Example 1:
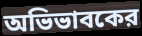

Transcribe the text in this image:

অভিভাবকের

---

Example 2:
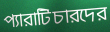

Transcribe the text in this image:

প্যারাটিচারদের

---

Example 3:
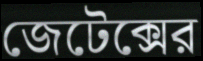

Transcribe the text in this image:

জেটেক্সের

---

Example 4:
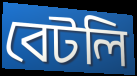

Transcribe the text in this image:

বেটলি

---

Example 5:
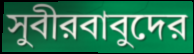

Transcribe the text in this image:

সুবীরবাবুদের